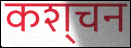
कश्चन